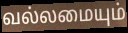
வல்லமையும்